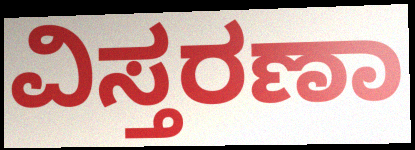
ವಿಸ್ತರಣಾ